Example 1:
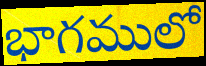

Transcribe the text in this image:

భాగములో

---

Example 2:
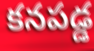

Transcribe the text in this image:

కనపడ్డ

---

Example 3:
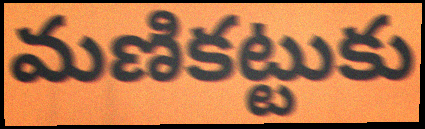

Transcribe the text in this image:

మణికట్టుకు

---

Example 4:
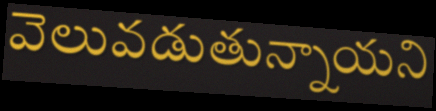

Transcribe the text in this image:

వెలువడుతున్నాయని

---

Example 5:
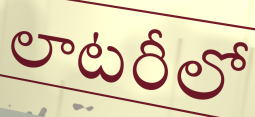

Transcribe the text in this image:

లాటరీలో